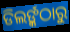
ଡିଲର୍ଙ୍କଠାରୁ